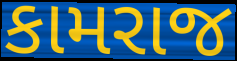
કામરાજ